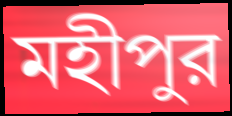
মহীপুর